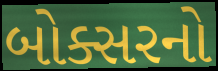
બોક્સરનો